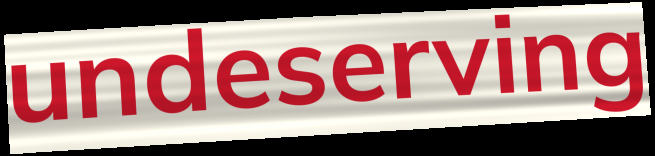
undeserving